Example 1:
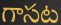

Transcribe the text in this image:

గాసట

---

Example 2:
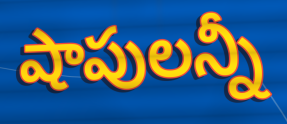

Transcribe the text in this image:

షాపులన్నీ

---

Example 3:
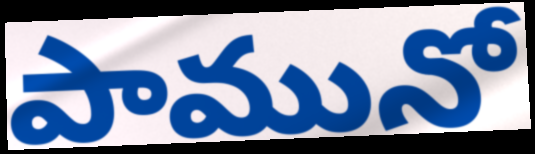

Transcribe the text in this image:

పామునో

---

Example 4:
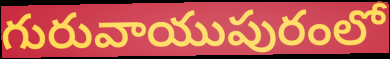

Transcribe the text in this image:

గురువాయుపురంలో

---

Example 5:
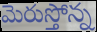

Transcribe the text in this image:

మెరుస్తోన్న